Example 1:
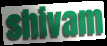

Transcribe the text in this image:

shivam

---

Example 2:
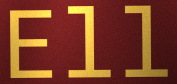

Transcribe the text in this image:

Ell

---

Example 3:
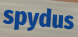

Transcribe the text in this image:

spydus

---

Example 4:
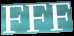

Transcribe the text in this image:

FFF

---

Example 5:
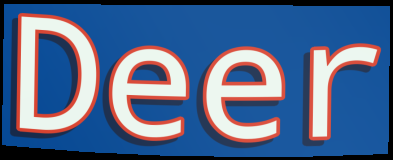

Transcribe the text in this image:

Deer